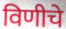
विणीचे